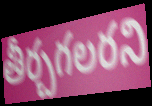
తీర్చగలరని